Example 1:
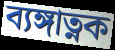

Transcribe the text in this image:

ব্যঙ্গাত্নক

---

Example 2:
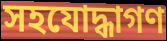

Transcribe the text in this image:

সহযোদ্ধাগণ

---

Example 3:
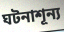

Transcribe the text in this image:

ঘটনাশূন্য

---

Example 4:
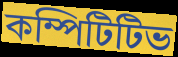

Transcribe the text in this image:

কম্পিটিটিভ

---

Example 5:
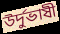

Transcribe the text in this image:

উর্দুভাষী